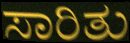
ಸಾರಿತು